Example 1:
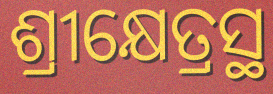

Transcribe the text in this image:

ଶ୍ରୀକ୍ଷେତ୍ରସ୍ଥ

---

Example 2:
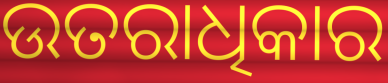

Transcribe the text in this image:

ଉତରାଧିକାର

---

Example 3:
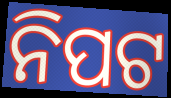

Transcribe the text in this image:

ନିପଟ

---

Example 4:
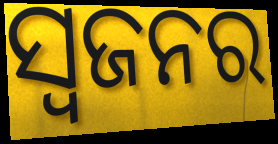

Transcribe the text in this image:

ସ୍ୱଜନର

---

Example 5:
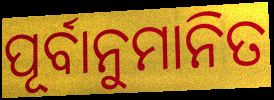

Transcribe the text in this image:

ପୂର୍ବାନୁମାନିତ